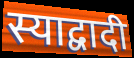
स्याद्वादी